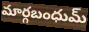
మార్గబంధుమ్